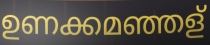
ഉണക്കമഞ്ഞള്